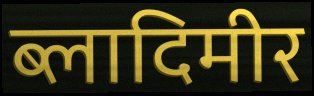
ब्लादिमीर